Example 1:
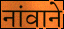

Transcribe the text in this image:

नांवाने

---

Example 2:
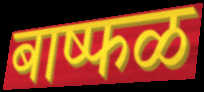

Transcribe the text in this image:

बाष्फळ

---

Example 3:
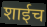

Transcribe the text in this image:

शाईच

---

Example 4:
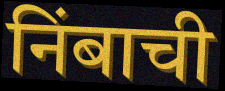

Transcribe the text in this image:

निंबाची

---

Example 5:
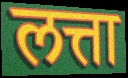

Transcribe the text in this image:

लत्ता